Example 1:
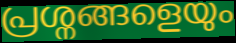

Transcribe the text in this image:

പ്രശ്നങ്ങളെയും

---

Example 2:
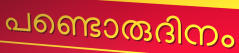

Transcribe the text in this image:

പണ്ടൊരുദിനം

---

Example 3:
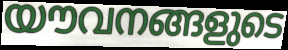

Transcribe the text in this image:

യൗവനങ്ങളുടെ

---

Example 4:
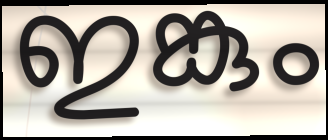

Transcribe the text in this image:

ഇങ്കും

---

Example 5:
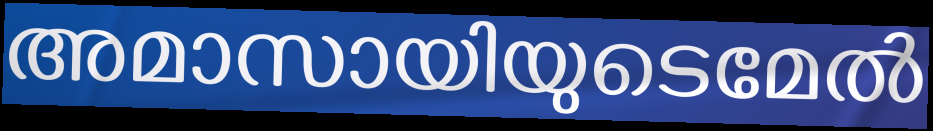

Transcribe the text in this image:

അമാസായിയുടെമേൽ